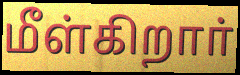
மீள்கிறார்